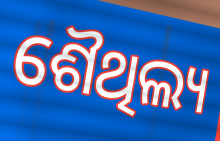
ଶୈଥିଲ୍ୟ